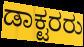
ಡಾಕ್ಟರರು